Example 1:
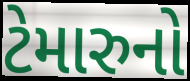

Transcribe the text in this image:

ટેમારુનો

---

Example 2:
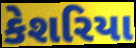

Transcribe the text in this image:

કેશરિયા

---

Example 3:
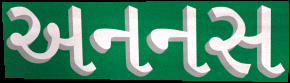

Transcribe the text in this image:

અનનસ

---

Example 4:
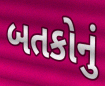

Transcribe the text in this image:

બતકોનું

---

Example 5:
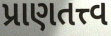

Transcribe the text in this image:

પ્રાણતત્ત્વ